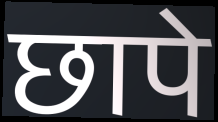
छापे